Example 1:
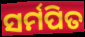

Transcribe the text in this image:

ସର୍ମପିତ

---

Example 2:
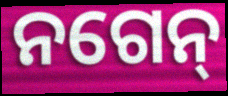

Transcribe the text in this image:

ନଗେନ୍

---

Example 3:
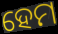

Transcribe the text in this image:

ହେମ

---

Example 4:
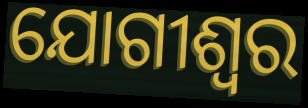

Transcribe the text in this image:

ଯୋଗୀଶ୍ୱର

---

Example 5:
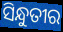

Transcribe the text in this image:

ସିନ୍ଧୁତୀର